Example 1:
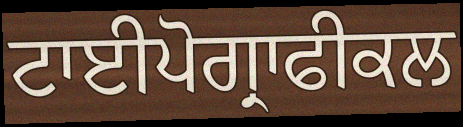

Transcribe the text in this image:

ਟਾਈਪੋਗ੍ਰਾਫੀਕਲ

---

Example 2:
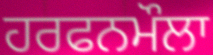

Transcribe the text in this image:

ਹਰਫਨਮੌਲਾ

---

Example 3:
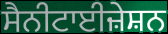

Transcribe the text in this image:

ਸੈਨੀਟਾਈਜ਼ੇਸ਼ਨ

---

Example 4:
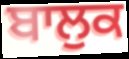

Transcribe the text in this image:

ਬਾਲੁਕ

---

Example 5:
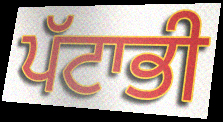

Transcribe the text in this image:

ਪੱਟਾਭੀ